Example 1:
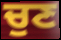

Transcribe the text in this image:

ਚੁਣ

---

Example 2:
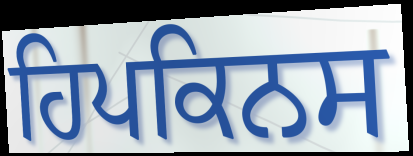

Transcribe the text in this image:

ਹਿਪਕਿਨਸ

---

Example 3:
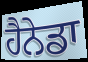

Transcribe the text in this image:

ਹੈਨੇਡਾ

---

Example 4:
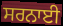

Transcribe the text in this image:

ਸਰਨਾਈ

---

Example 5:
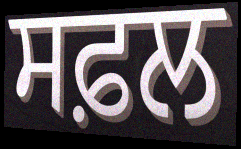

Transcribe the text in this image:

ਸਫ਼ਲ